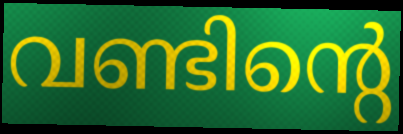
വണ്ടിന്റെ